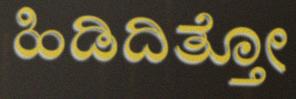
ಹಿಡಿದಿತ್ತೋ